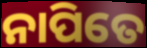
ନାପିତେ